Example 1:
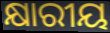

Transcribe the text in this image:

କ୍ଷାରୀୟ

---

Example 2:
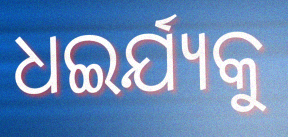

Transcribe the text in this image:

ଧଇର୍ଯ୍ୟକୁ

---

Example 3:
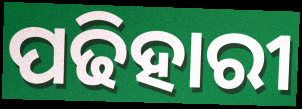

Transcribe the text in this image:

ପଢିହାରୀ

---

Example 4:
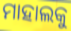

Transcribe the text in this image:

ମାହାଲକୁ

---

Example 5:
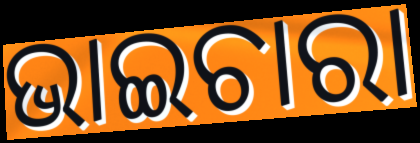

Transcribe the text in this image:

ଭାଇଚାରା